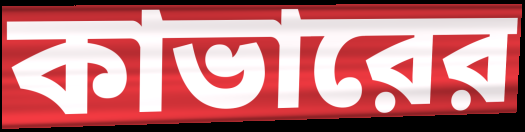
কাভারের